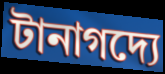
টানাগদ্যে